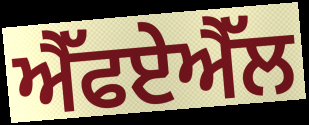
ਐੱਫਏਐੱਲ